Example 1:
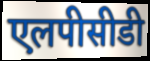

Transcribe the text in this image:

एलपीसीडी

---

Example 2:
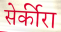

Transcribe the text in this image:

सेर्कीरा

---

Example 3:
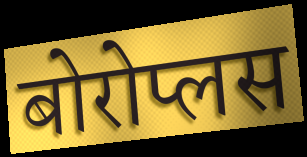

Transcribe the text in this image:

बोरोप्लस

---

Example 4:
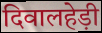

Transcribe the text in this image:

दिवालहेड़ी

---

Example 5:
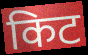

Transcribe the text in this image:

किट